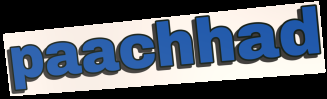
paachhad